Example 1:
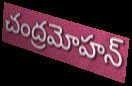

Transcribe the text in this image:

చంద్రమోహన్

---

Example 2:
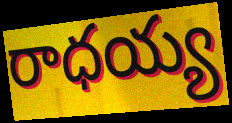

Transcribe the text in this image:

రాధయ్య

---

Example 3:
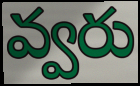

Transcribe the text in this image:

వ్వరు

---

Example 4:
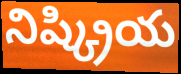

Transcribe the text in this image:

నిష్క్రియ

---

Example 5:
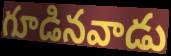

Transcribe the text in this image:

గూడినవాడు